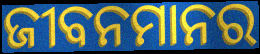
ଜୀବନମାନର